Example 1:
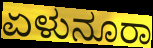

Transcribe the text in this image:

ಏಳುನೂರಾ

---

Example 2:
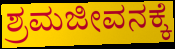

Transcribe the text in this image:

ಶ್ರಮಜೀವನಕ್ಕೆ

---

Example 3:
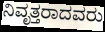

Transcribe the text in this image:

ನಿವೃತ್ತರಾದವರು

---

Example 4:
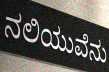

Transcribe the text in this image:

ನಲಿಯುವೆನು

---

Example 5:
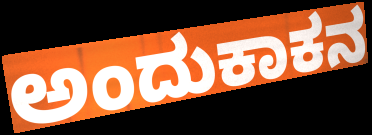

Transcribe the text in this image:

ಅಂದುಕಾಕನ